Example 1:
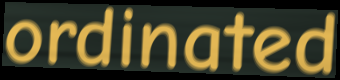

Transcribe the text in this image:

ordinated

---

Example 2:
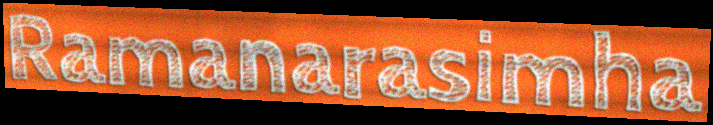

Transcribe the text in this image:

Ramanarasimha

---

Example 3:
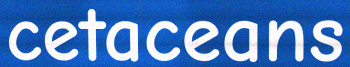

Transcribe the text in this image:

cetaceans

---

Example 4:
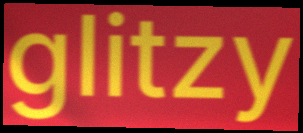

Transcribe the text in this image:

glitzy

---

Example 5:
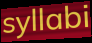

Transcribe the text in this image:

syllabi